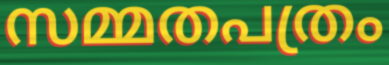
സമ്മതപത്രം